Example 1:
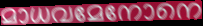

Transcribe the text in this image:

മാധവമേനോനെ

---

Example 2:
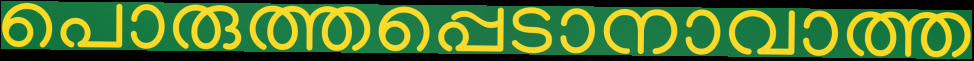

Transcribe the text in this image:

പൊരുത്തപ്പെടാനാവാത്ത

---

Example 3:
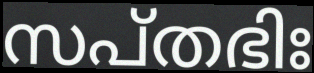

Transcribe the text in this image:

സപ്തഭിഃ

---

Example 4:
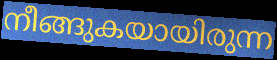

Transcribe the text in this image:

നീങ്ങുകയായിരുന്ന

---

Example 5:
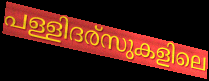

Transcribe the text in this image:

പള്ളിദര്സുകളിലെ